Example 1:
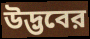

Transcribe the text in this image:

উদ্ভবের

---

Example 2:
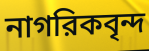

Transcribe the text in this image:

নাগরিকবৃন্দ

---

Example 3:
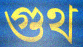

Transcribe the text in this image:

গুথ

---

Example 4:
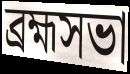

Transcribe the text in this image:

ব্রহ্মসভা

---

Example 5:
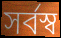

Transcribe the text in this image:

সর্বস্ব